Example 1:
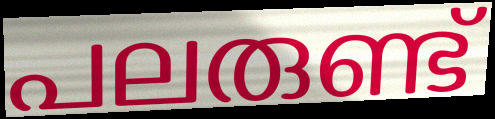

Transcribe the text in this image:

പലരുണ്ട്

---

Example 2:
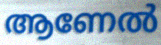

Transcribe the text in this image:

ആണേൽ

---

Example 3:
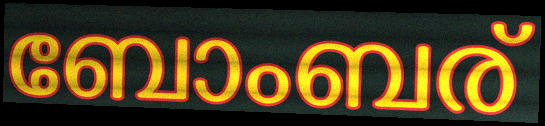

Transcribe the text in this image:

ബോംബര്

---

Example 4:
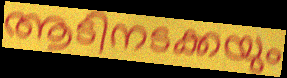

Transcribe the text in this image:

ആടിനടക്കയും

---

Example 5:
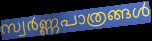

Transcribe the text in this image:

സ്വർണ്ണപാത്രങ്ങൾ